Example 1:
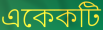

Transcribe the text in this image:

একেকটি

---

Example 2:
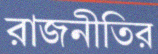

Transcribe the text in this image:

রাজনীতির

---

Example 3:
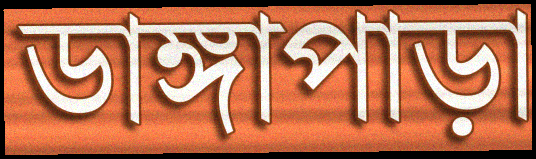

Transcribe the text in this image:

ডাঙ্গাপাড়া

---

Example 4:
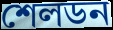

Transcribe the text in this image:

শেলডন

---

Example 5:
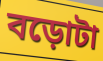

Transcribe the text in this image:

বড়োটা